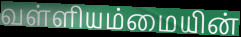
வள்ளியம்மையின்